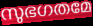
സുഭഗതമേ